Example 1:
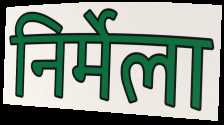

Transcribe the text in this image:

निर्मेला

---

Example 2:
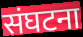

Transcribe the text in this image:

संघटना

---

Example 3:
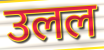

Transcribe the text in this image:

उलल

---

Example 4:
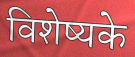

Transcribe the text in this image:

विशेष्यके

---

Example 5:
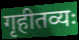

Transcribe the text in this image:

गृहीतव्यः